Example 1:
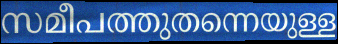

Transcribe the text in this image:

സമീപത്തുതന്നെയുള്ള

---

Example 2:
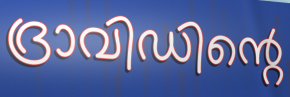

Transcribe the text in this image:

ദ്രാവിഡിന്റെ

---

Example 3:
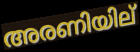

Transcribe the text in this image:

അരണിയില്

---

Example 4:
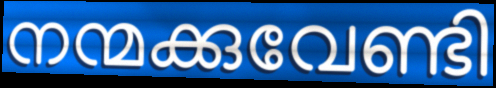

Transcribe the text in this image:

നന്മക്കുവേണ്ടി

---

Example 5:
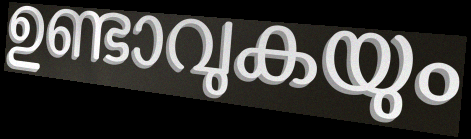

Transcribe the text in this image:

ഉണ്ടാവുകയും